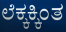
ಲೆಕ್ಕಕ್ಕಿಂತ